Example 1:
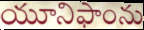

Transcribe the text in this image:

యూనిఫాంను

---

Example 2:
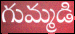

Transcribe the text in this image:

గుమ్మడి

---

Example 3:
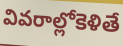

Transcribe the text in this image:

వివరాల్లోకెళితే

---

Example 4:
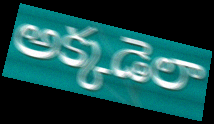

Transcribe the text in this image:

అక్కడెలా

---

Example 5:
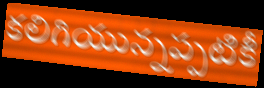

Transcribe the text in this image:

కలిగియున్నప్పటికీ